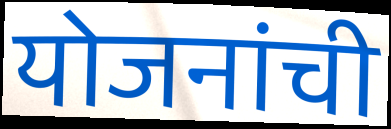
योजनांची